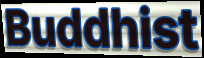
Buddhist